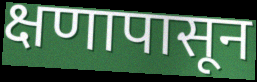
क्षणापासून